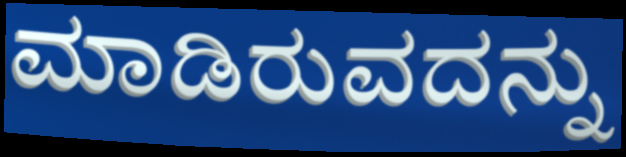
ಮಾಡಿರುವದನ್ನು